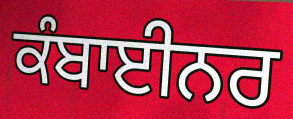
ਕੰਬਾਈਨਰ